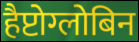
हैप्टोग्लोबिन